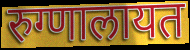
रुग्णालायत